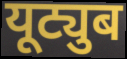
यूट्युब